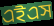
এইএস